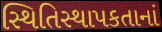
સ્થિતિસ્થાપકતાનાં